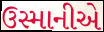
ઉસ્માનીએ